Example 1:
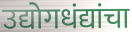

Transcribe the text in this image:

उद्योगधंद्यांचा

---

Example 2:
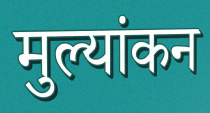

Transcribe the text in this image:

मुल्यांकन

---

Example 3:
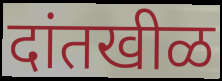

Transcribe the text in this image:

दांतखीळ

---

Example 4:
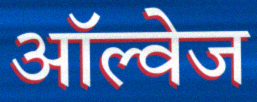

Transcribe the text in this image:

ऑल्वेज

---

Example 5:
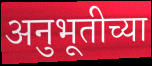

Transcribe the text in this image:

अनुभूतीच्या